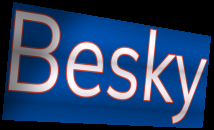
Besky